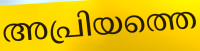
അപ്രിയത്തെ